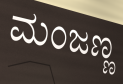
ಮಂಜಣ್ಣ